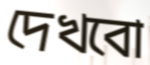
দেখবো